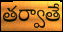
తర్వాతే